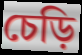
চেড়ি